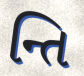
ન્તિ